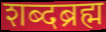
शब्दब्रह्म